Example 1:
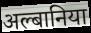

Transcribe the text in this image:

अल्बानिया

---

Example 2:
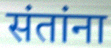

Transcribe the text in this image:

संतांना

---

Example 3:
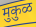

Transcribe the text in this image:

मुकुळ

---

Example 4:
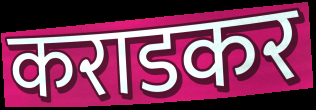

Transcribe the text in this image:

कराडकर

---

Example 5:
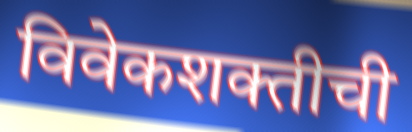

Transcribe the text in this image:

विवेकशक्तीची